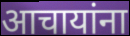
आचायांना